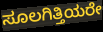
ಸೂಲಗಿತ್ತಿಯರೇ